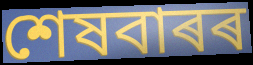
শেষবাৰৰ